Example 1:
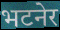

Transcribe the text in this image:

भटनेर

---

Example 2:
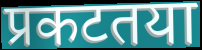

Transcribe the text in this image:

प्रकटतया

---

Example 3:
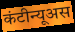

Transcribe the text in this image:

कंटीन्यूअस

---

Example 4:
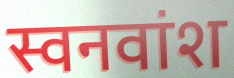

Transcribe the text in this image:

स्वनवांश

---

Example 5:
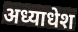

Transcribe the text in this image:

अध्याधेश